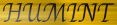
HUMINT